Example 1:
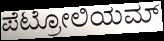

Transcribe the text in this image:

ಪೆಟ್ರೋಲಿಯಮ್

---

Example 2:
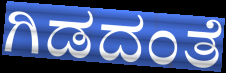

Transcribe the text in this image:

ಗಿಡದಂತೆ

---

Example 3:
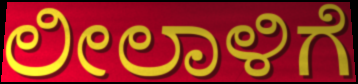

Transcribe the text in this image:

ಲೀಲಾಳಿಗೆ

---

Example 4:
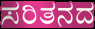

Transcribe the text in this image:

ಸರಿತನದ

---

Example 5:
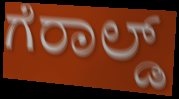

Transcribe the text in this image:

ಗೆರಾಲ್ಡ್